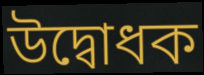
উদ্বোধক